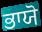
ਭਾਯੋ